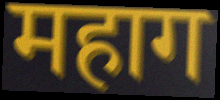
महाग